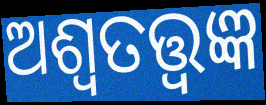
ଅଶ୍ୱତତ୍ତ୍ୱଜ୍ଞ